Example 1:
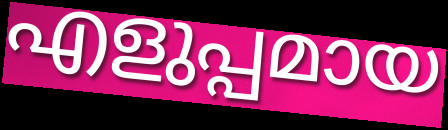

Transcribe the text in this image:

എളുപ്പമായ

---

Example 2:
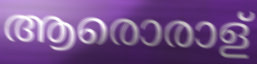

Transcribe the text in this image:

ആരൊരാള്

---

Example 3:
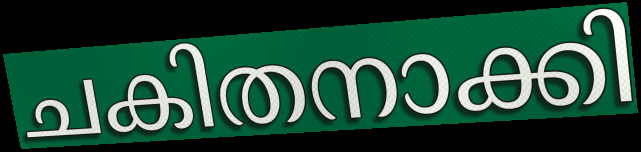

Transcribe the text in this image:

ചകിതനാക്കി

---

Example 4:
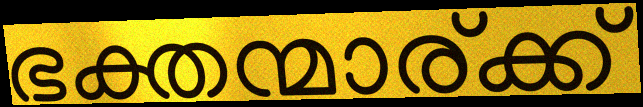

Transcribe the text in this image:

ഭക്തന്മാര്ക്ക്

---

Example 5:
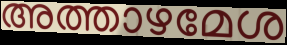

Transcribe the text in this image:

അത്താഴമേശ